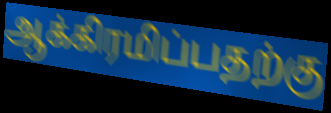
ஆக்கிரமிப்பதற்கு